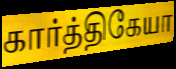
கார்த்திகேயா